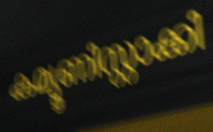
കമ്യൂണിസ്റ്റാക്കി